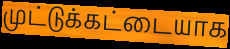
முட்டுக்கட்டையாக